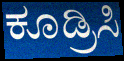
ಕೂಡ್ರಿಸಿ